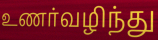
உணர்வழிந்து